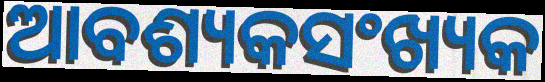
ଆବଶ୍ୟକସଂଖ୍ୟକ